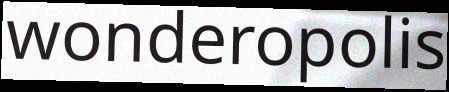
wonderopolis